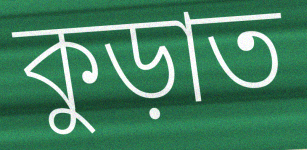
কুড়াত